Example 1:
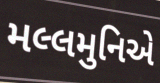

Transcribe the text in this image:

મલ્લમુનિએ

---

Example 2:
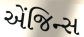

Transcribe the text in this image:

એંજિન્સ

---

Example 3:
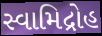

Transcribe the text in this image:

સ્વામિદ્રોહ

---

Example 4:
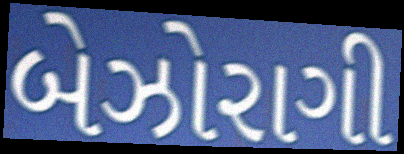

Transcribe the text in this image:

બેઝોરાગી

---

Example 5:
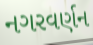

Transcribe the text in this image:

નગરવર્ણન